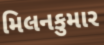
મિલનકુમાર